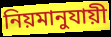
নিয়মানুযায়ী